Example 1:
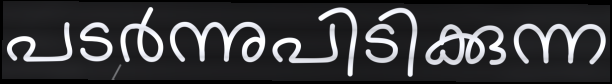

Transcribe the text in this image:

പടർന്നുപിടിക്കുന്ന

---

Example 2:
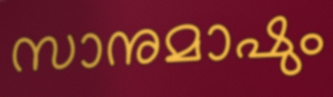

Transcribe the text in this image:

സാനുമാഷും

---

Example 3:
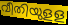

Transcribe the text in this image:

വീതിയുളള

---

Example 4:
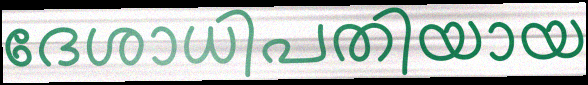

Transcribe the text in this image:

ദേശാധിപതിയായ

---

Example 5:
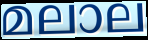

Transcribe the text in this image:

മലാല